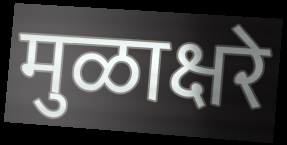
मुळाक्षरे